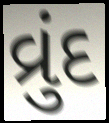
વ્રુંદ